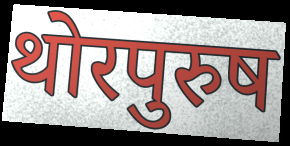
थोरपुरुष